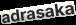
adrasaka